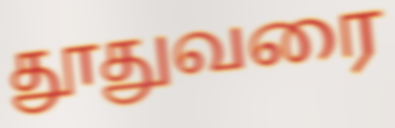
தூதுவரை